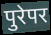
पुरेपर